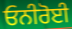
ਓਨੀਰੋਈ